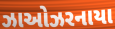
ઝાઓઝરનાયા